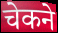
चेकने